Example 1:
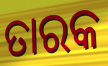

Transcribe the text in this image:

ତାରକ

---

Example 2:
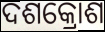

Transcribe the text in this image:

ଦଶକ୍ରୋଶ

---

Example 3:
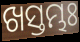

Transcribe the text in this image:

ଖସ୍ତମ୍ଭଃ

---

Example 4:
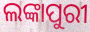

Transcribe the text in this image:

ଲଙ୍କାପୁରୀ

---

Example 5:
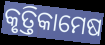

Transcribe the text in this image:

କୃତ୍ତିକାମେଷ